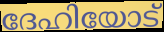
ദേഹിയോട്